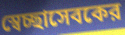
স্বেচ্ছাসেবকের